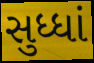
સુધ્ધાં